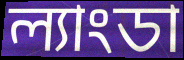
ল্যাংডা